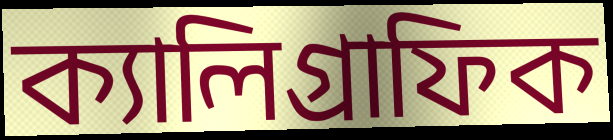
ক্যালিগ্রাফিক